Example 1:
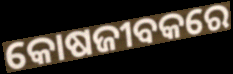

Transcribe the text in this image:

କୋଷଜୀବକରେ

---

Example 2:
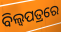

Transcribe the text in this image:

ବିଲ୍ଵପତ୍ରରେ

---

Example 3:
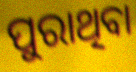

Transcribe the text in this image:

ପୁରାଥିବା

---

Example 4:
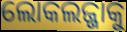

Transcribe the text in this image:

ଲୋକଲଜ୍ଜାକୁ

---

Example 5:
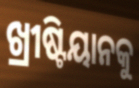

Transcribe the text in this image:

ଖ୍ରୀଷ୍ଟିୟାନକୁ